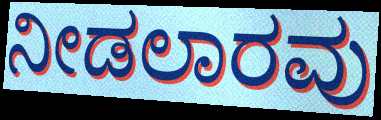
ನೀಡಲಾರವು